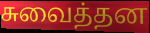
சுவைத்தன